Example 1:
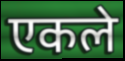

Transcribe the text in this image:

एकले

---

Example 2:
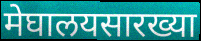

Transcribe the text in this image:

मेघालयसारख्या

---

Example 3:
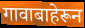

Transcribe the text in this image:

गावाबाहेरून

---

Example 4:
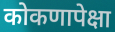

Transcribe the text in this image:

कोकणापेक्षा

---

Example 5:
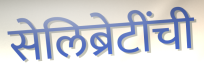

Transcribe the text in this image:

सेलिब्रेटींची